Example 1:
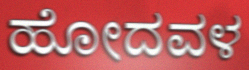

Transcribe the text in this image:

ಹೋದವಳ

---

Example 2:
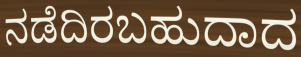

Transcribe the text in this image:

ನಡೆದಿರಬಹುದಾದ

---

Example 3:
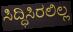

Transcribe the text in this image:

ಸಿದ್ಧಿಸಿರಲಿಲ್ಲ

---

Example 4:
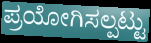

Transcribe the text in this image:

ಪ್ರಯೋಗಿಸಲ್ಪಟ್ಟು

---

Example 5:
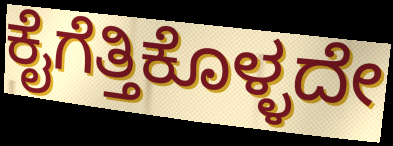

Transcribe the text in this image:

ಕೈಗೆತ್ತಿಕೊಳ್ಳದೇ